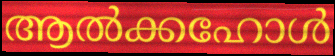
ആൽക്കഹോൾ